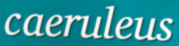
caeruleus